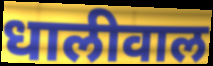
धालीवाल